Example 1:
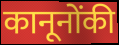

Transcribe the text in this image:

कानूनोंकी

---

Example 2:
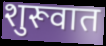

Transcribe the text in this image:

शुरूवात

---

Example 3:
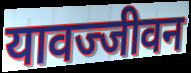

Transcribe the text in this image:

यावज्जीवन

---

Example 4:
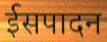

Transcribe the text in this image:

ईसपादन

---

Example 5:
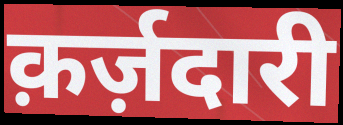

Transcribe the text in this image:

क़र्ज़दारी